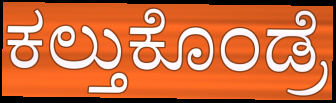
ಕಲ್ತುಕೊಂಡ್ರೆ